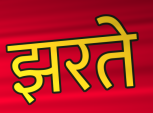
झरते